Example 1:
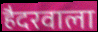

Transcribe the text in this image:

हैदरवाला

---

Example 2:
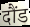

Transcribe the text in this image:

दौंड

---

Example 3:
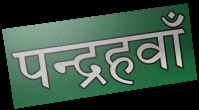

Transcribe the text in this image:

पन्द्रहवाँ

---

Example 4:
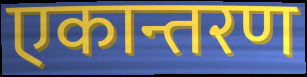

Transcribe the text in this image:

एकान्तरण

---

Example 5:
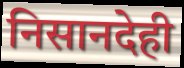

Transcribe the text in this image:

निसानदेही